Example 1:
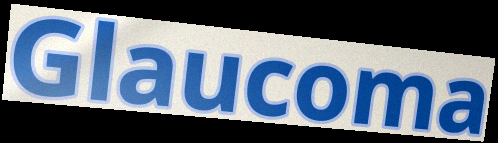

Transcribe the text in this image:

Glaucoma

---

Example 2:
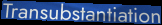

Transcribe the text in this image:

Transubstantiation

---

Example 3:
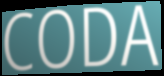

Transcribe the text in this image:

CODA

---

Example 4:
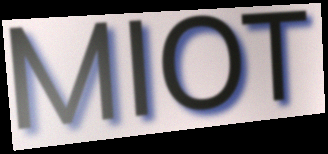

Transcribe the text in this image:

MIOT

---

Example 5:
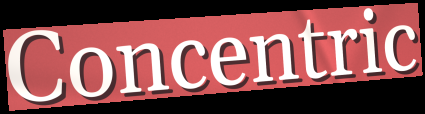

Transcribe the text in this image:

Concentric